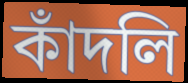
কাঁদলি